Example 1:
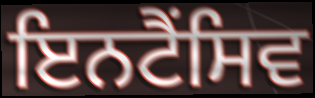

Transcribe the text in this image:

ਇਨਟੈਂਸਿਵ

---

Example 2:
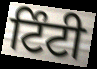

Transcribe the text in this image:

ਟਿੰਟੀ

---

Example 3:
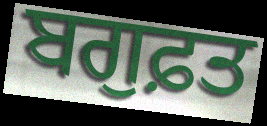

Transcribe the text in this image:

ਬਗੁਫ਼ਤ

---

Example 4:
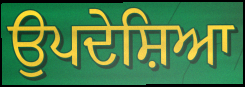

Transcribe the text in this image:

ਉਪਦੇਸ਼ਿਆ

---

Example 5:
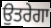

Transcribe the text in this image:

ਉਤਰੇਗਾ